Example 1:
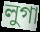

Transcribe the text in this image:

লুগা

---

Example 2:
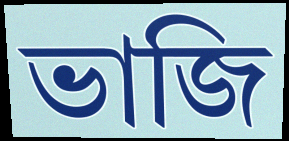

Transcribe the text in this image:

ভাজি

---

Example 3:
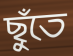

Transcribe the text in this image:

ছুঁতে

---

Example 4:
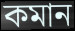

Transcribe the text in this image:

কমান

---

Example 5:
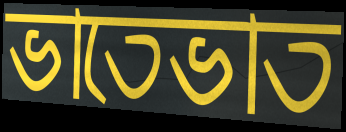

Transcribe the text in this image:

ভাতেভাত